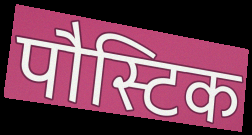
पौस्टिक